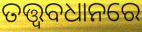
ତତ୍ତ୍ଵବଧାନରେ